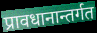
प्रावधानान्तर्गत